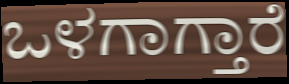
ಒಳಗಾಗ್ತಾರೆ